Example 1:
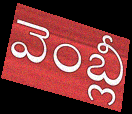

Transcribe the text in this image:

వెంబ్లీ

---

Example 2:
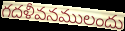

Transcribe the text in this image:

గదళీవనములందు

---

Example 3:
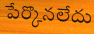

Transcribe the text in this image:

పేర్కొనలేదు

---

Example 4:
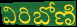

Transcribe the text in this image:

విరిబోణి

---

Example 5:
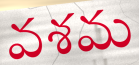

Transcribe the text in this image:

వశమ